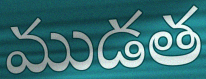
ముడత